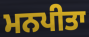
ਮਨਪੀਤਾ